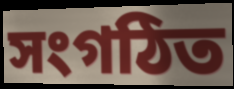
সংগঠিত